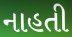
નાહતી